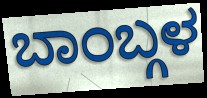
ಬಾಂಬ್ಗಳ